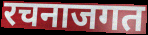
रचनाजगत